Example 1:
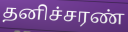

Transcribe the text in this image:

தனிச்சரண்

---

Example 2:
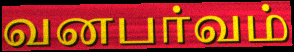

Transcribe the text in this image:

வனபர்வம்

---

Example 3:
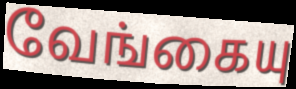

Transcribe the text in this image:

வேங்கையு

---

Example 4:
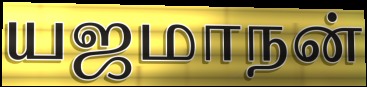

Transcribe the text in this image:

யஜமாநன்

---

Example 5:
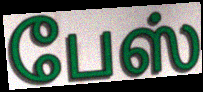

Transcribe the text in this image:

பேஸ்